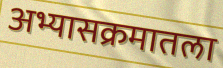
अभ्यासक्रमातला